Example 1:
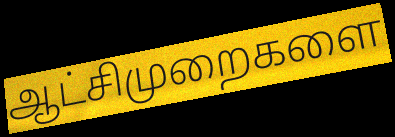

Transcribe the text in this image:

ஆட்சிமுறைகளை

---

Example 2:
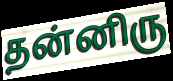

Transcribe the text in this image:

தன்னிரு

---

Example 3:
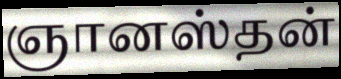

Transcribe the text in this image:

ஞானஸ்தன்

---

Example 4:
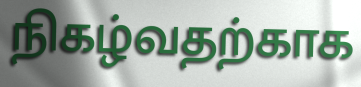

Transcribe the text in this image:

நிகழ்வதற்காக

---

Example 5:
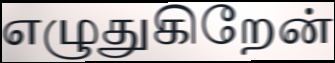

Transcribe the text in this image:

எழுதுகிறேன்